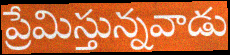
ప్రేమిస్తున్నవాడు